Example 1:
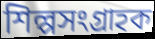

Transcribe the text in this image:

শিল্পসংগ্রাহক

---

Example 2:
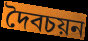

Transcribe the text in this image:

দৈবচয়ন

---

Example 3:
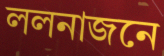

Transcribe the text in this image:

ললনাজনে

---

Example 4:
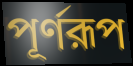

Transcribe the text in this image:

পূর্ণরূপ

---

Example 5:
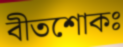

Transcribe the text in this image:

বীতশোকঃ